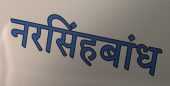
नरसिंहबांध